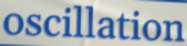
oscillation